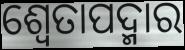
ଶ୍ଵେତାପଦ୍ମାର